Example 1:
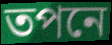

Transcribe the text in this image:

তপনে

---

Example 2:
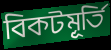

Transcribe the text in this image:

বিকটমূর্তি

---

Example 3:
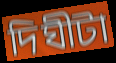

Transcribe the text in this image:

দিঘীটা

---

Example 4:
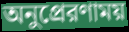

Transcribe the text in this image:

অনুপ্রেরণাময়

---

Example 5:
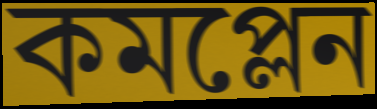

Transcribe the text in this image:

কমপ্লেন